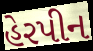
હેરપીન